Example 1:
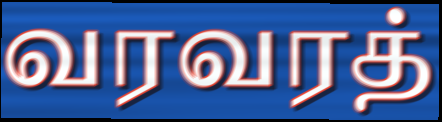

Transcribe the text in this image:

வரவரத்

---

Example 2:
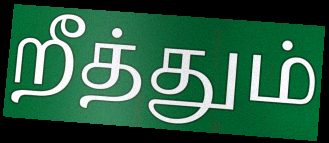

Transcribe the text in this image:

றீத்தும்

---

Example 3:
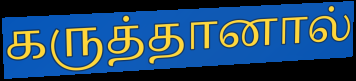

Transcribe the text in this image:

கருத்தானால்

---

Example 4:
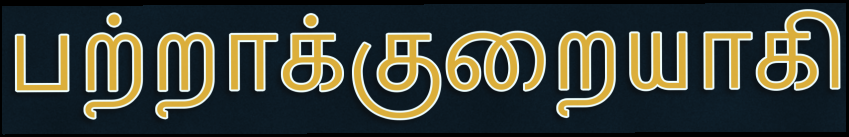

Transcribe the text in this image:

பற்றாக்குறையாகி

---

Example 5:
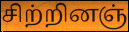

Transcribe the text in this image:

சிற்றினஞ்